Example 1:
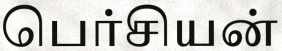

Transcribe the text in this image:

பெர்சியன்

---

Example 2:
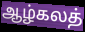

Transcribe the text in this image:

ஆழ்கலத்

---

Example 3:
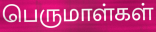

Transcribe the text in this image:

பெருமாள்கள்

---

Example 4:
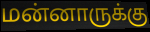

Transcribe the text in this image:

மன்னாருக்கு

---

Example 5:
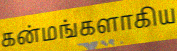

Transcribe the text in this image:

கன்மங்களாகிய